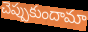
చెప్పుకుందామా